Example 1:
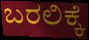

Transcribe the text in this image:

ಬರಲಿಕ್ಕೆ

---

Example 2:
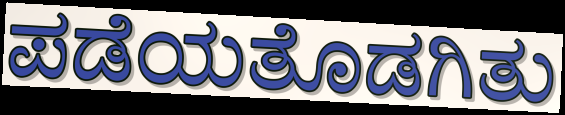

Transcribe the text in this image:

ಪಡೆಯತೊಡಗಿತು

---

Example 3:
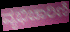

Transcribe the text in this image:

ವ್ಯಭಿಚಾರಿಣಿ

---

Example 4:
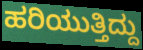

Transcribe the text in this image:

ಹರಿಯುತ್ತಿದ್ದು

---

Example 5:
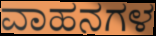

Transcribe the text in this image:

ವಾಹನಗಳ